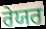
ਰੇਯਰ